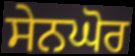
ਸੇਨਘੋਰ